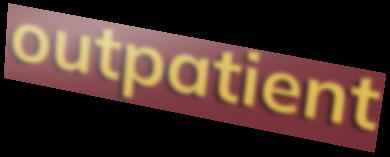
outpatient